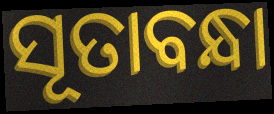
ସୂତାବନ୍ଧା